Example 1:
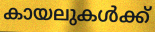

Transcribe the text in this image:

കായലുകൾക്ക്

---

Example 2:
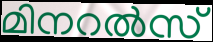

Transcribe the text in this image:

മിനറൽസ്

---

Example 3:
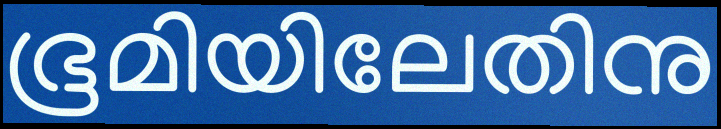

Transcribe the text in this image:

ഭൂമിയിലേതിനു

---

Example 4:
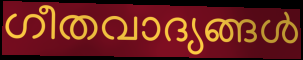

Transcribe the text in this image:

ഗീതവാദ്യങ്ങൾ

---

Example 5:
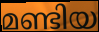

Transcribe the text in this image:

മണ്ടിയ